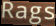
Rags